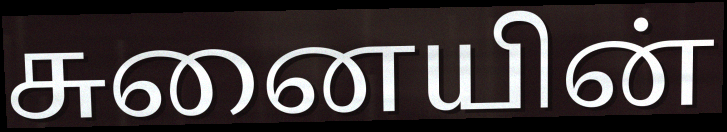
சுனையின்